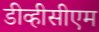
डीव्हीसीएम